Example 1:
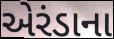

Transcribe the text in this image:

એરંડાના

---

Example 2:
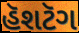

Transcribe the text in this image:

હૅશટૅગ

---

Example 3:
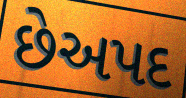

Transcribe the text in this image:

છેઅપદ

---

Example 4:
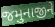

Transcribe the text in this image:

જમુનાજીને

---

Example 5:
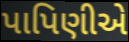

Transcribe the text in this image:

પાપિણીએ